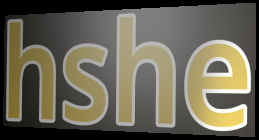
hshe